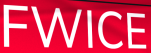
FWICE